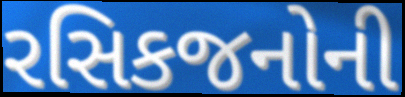
રસિકજનોની